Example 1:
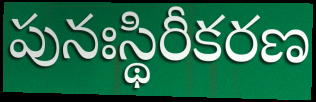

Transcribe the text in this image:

పునఃస్థిరీకరణ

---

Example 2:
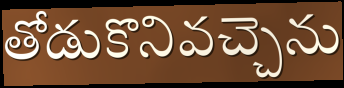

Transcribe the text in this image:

తోడుకొనివచ్చెను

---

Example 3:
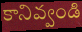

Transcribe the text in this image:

కానివ్వండి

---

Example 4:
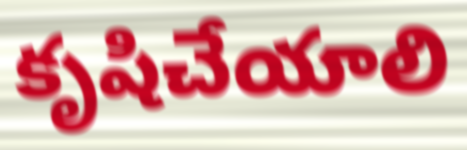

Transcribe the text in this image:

కృషిచేయాలి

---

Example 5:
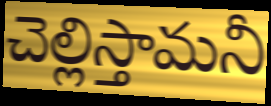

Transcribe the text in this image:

చెల్లిస్తామనీ